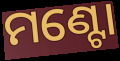
ମଣ୍ଟୋ